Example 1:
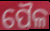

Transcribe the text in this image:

ପୈଳ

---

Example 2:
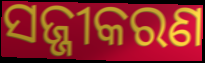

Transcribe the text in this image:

ସଜ୍ଜୀକରଣ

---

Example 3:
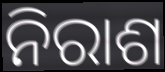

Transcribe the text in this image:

ନିରାଶ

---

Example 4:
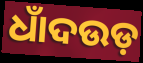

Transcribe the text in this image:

ଧାଁଦଉଡ଼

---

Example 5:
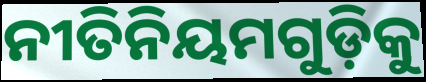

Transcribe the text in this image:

ନୀତିନିୟମଗୁଡ଼ିକୁ